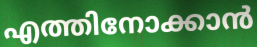
എത്തിനോക്കാൻ